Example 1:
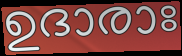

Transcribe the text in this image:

ഉദാരാഃ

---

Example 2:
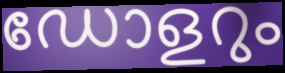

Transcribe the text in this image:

ഡോളറും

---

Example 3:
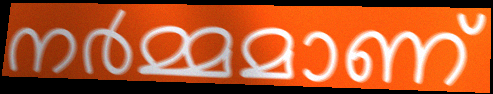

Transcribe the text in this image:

നർമ്മമാണ്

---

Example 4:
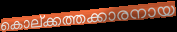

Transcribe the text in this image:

കൊല്ക്കത്തക്കാരനായ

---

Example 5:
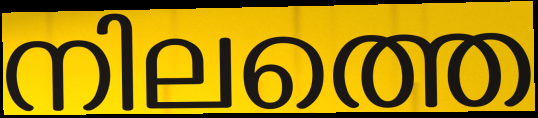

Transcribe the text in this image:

നിലത്തെ